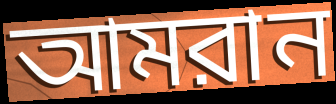
আমরান